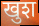
खुश